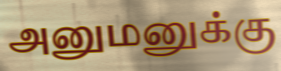
அனுமனுக்கு